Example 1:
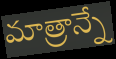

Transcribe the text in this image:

మాత్రాన్నే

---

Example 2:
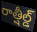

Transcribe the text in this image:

రాత్షీల్డ్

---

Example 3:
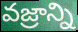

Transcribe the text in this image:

వజ్రాన్ని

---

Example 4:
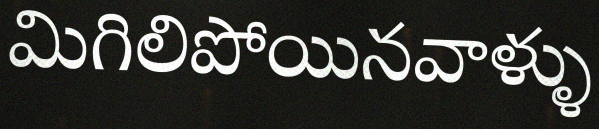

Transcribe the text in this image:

మిగిలిపోయినవాళ్ళు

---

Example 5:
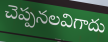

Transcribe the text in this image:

చెప్పనలవిగాదు